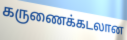
கருணைக்கடலான